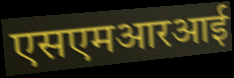
एसएमआरआई